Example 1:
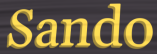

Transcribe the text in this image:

Sando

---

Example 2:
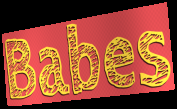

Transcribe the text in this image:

Babes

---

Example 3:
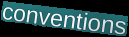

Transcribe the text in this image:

conventions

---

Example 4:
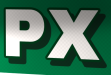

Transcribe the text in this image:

PX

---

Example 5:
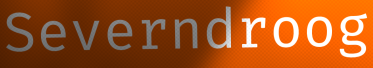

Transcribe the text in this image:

Severndroog